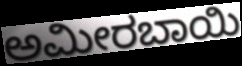
ಅಮೀರಬಾಯಿ